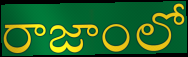
రాజాంలో